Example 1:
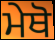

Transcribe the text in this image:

ਮੇਥੋ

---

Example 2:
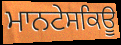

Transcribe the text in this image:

ਮਾਨਟੇਸਕਿਊ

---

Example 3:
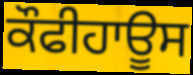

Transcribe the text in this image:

ਕੌਫੀਹਾਊਸ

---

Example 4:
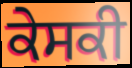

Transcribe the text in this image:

ਕੇਸਕੀ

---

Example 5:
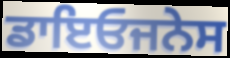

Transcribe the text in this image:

ਡਾਇਓਜਨੇਸ